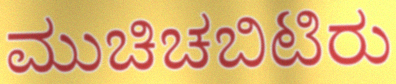
ಮುಚಿಚಬಿಟಿರು